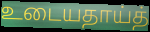
உடையதாய்த்